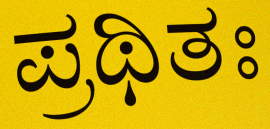
ಪ್ರಥಿತಃ